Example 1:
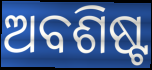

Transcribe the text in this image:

ଅବଶିଷ୍ଟ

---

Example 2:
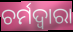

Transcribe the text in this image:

ଚର୍ମଦ୍ଵାରା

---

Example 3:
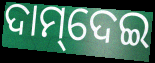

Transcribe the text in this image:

ଦାମ୍‌ଦେଇ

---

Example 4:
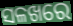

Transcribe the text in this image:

ସଳଖରେ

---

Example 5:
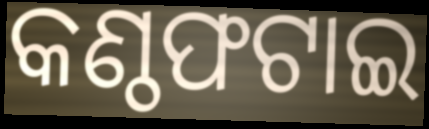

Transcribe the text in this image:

କଣ୍ଠଫଟାଇ